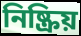
নিষ্ক্ৰিয়